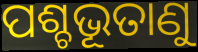
ପଶ୍ଚଭୂତାଣୁ